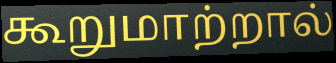
கூறுமாற்றால்